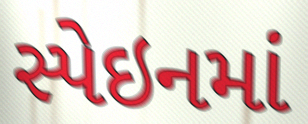
સ્પેઇનમાં